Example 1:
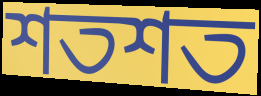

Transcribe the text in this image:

শতশত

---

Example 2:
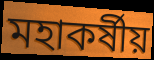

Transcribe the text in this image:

মহাকর্ষীয়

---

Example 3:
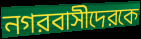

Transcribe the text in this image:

নগরবাসীদেরকে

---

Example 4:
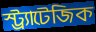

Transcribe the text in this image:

স্ট্র্যাটেজিক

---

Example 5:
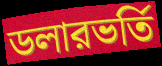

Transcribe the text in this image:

ডলারভর্তি